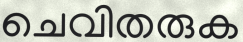
ചെവിതരുക